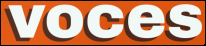
voces